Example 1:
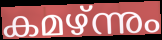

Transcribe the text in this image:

കമഴ്ന്നും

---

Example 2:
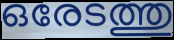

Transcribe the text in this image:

ഒരേടത്തു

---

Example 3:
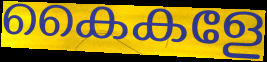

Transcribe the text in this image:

കൈകളേ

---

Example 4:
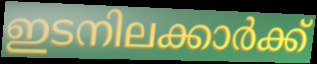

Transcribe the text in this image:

ഇടനിലക്കാർക്ക്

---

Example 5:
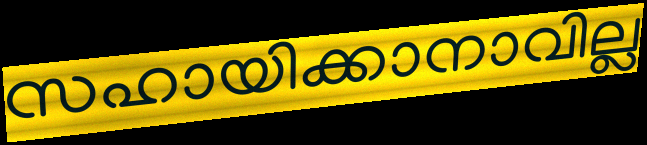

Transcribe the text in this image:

സഹായിക്കാനാവില്ല